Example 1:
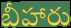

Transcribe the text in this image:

బీహారు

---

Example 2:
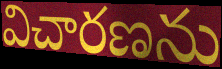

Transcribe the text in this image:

విచారణను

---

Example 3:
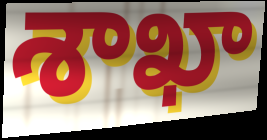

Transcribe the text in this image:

శాఖా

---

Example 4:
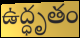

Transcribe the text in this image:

ఉద్ధృతం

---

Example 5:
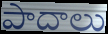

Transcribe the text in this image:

పాదాలు